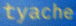
tyache